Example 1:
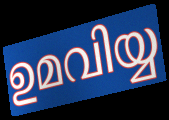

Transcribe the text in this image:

ഉമവിയ്യ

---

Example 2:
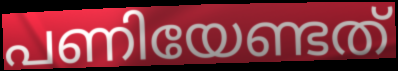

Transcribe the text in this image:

പണിയേണ്ടത്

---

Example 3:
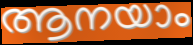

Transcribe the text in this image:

ആനയാം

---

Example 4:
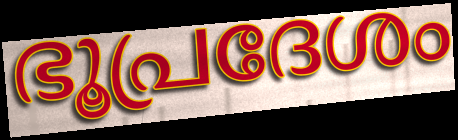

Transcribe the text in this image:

ഭൂപ്രദേശം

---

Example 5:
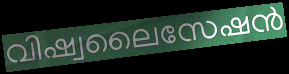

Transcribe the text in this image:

വിഷ്വലൈസേഷൻ